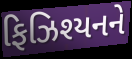
ફિઝિશ્યનને